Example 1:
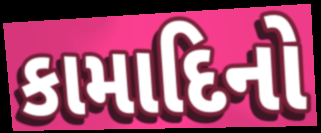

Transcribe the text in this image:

કામાદિનો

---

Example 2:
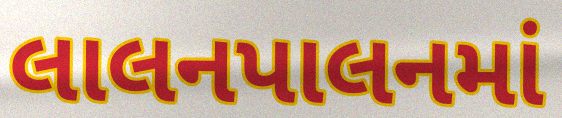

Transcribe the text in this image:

લાલનપાલનમાં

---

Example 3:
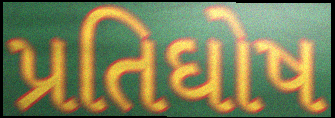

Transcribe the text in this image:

પ્રતિઘોષ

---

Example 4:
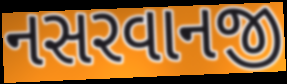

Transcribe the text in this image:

નસરવાનજી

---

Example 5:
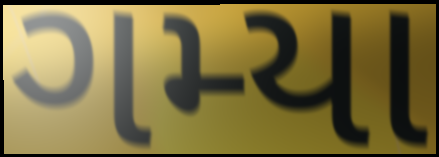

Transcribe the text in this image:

ગમ્યા